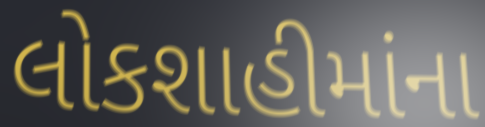
લોકશાહીમાંના